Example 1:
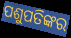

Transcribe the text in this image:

ପଶୁପତିଙ୍କର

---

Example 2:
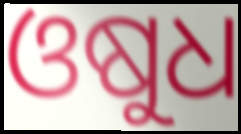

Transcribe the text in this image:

ଓଷୁଧ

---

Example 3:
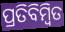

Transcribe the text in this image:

ପ୍ରତିବିମ୍ବିତ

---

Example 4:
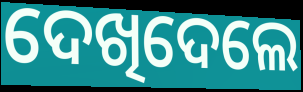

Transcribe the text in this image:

ଦେଖିଦେଲେ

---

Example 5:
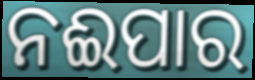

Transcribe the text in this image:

ନଈପାର